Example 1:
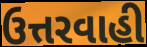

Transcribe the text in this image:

ઉત્તરવાહી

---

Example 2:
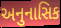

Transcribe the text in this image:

અનુનાસિક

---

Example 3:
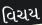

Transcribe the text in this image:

વિચય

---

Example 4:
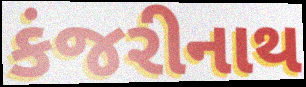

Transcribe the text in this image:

કંજરીનાથ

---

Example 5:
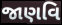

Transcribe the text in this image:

જાણવિ